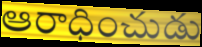
ఆరాధించుడు